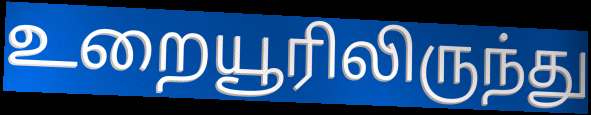
உறையூரிலிருந்து